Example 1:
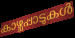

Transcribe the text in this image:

കാഴ്ചപ്പാടുകൾ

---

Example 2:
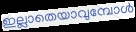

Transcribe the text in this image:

ഇല്ലാതെയാവുമ്പോൾ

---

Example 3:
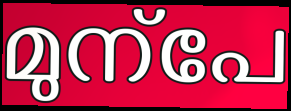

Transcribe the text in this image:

മുന്പേ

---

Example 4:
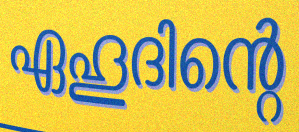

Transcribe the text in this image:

ഏഹൂദിന്റെ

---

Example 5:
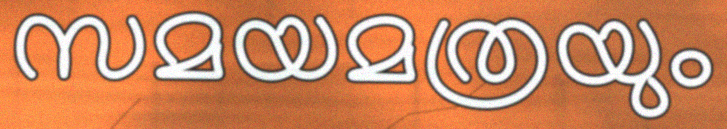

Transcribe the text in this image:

സമയമത്രയും